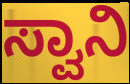
ಸ್ವಾನಿ